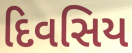
દિવસિય